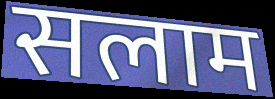
सलाम